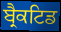
ਬ੍ਰੈਕਟਿਡ